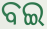
ବଇ